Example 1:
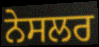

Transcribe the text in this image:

ਨੇਸਲਰ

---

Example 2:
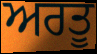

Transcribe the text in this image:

ਅਰਤੂ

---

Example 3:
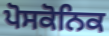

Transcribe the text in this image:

ਪੋਸਕੋਨਿਕ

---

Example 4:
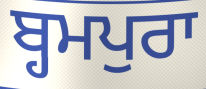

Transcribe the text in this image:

ਬ੍ਹਮਪੁਰਾ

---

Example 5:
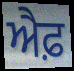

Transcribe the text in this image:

ਐਫ਼